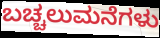
ಬಚ್ಚಲುಮನೆಗಳು